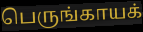
பெருங்காயக்